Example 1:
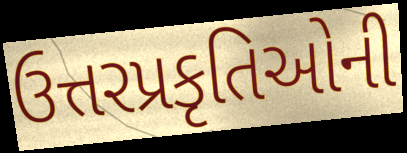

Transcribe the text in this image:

ઉત્તરપ્રકૃતિઓની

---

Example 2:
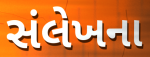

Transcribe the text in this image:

સંલેખના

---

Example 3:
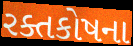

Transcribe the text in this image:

રક્તકોષના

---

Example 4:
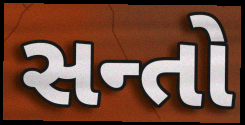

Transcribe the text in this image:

સન્તો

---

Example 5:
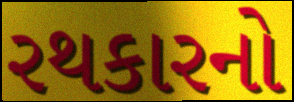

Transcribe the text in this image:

રથકારનો